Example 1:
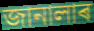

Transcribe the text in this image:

জানালাৰ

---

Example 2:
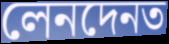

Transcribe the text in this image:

লেনদেনত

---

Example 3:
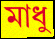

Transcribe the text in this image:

মাধু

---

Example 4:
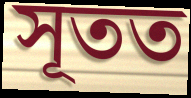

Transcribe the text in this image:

সূতত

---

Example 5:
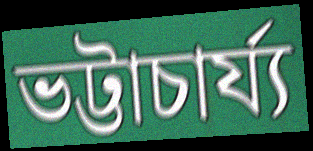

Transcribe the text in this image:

ভট্টাচাৰ্য্য